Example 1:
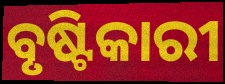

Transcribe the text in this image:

ବୃଷ୍ଟିକାରୀ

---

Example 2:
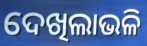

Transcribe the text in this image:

ଦେଖିଲାଭଳି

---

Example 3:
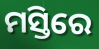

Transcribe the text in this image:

ମସ୍ତିରେ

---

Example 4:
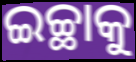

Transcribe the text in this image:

ଇଚ୍ଛାକୁ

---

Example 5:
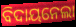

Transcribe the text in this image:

ବିଦାୟନେଲା